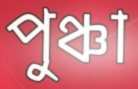
পুঞ্চা